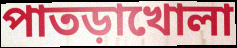
পাতড়াখোলা